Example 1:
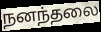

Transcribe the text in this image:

நனந்தலை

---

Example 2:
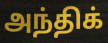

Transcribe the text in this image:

அந்திக்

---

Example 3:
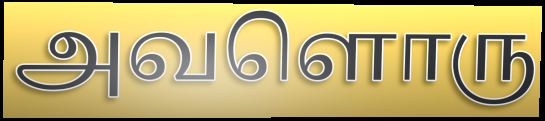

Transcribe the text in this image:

அவளொரு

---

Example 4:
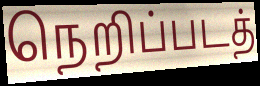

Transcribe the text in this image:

நெறிப்படத்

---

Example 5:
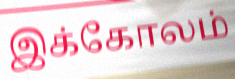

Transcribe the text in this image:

இக்கோலம்